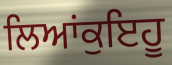
ਲਿਆਂਕੁਇਹੂ